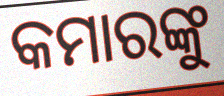
କମାରଙ୍କୁ